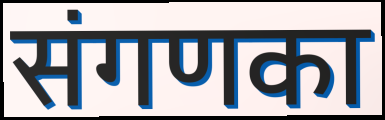
संगणका